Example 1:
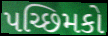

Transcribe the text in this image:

પચ્છિમકો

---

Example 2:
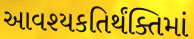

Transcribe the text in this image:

આવશ્યકતિર્થંક્તિમાં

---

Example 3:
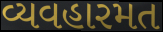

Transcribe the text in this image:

વ્યવહારમત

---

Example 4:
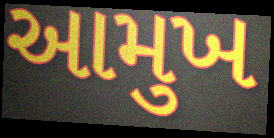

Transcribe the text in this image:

આમુખ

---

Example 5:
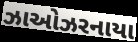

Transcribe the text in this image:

ઝાઓઝરનાયા